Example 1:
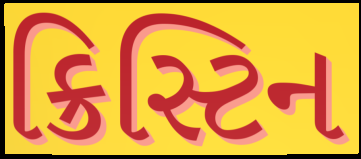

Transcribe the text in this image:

ક્રિસ્ટિન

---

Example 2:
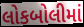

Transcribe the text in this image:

લોકબોલીમાં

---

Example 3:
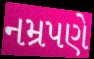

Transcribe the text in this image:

નમ્રપણે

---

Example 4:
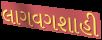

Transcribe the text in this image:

લાગવગશાહી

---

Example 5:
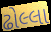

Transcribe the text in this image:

ઢોલ્લા